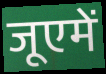
जूएमें